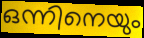
ഒന്നിനെയും